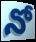
నో